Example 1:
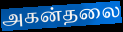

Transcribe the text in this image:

அகன்தலை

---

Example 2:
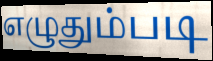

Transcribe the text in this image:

எழுதும்படி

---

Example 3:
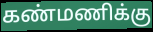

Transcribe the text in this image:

கண்மணிக்கு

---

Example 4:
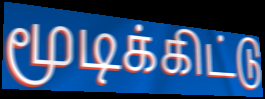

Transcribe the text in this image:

மூடிக்கிட்டு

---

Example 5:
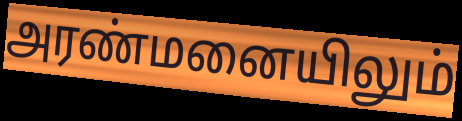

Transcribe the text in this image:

அரண்மனையிலும்